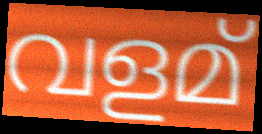
വളമ്